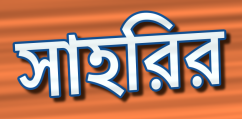
সাহরির